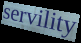
servility